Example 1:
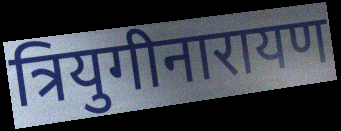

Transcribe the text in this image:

त्रियुगीनारायण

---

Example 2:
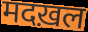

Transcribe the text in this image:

मदख़ल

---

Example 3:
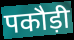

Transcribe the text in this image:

पकौड़ी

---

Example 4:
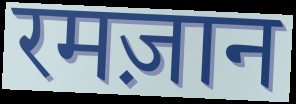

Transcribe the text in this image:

रमज़ान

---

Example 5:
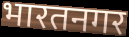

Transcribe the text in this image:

भारतनगर